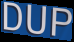
DUP